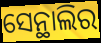
ସେନ୍ଥାଲିର